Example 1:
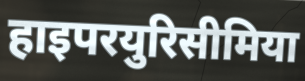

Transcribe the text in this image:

हाइपरयुरिसीमिया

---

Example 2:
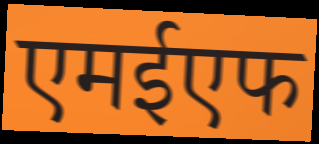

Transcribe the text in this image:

एमईएफ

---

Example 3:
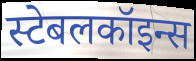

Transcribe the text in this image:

स्टेबलकॉइन्स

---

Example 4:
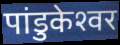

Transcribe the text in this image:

पांडुकेश्वर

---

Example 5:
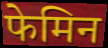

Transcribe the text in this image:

फेमिन